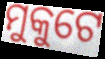
ମୁକୁଟେ